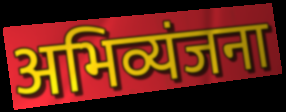
अभिव्यंजना